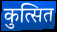
कुत्सित